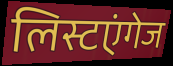
लिस्टएंगेज